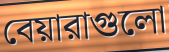
বেয়ারাগুলো